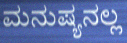
ಮನುಷ್ಯನಲ್ಲ